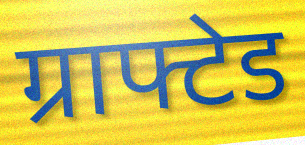
ग्राफ्टेड